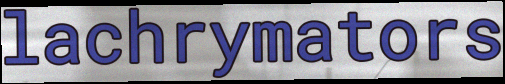
lachrymators